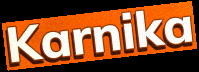
Karnika